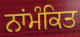
ਨਾਂਮੰਕਿਤ